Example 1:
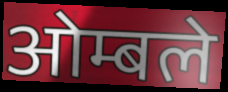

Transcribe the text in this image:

ओम्बले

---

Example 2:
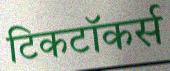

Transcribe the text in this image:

टिकटॉकर्स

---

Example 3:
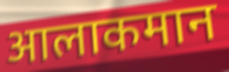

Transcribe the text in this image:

आलाकमान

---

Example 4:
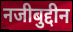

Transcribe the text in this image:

नजीबुद्दीन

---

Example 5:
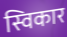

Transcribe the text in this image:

स्विकार